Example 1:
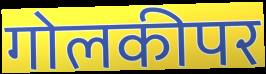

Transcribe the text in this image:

गोलकीपर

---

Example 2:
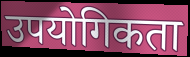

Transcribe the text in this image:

उपयोगिकता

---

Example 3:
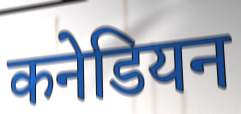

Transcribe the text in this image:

कनेडियन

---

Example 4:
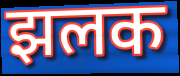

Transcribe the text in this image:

झलक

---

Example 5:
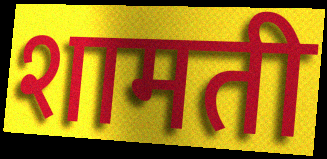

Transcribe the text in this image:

शामती